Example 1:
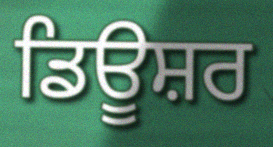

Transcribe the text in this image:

ਡਿਊਸ਼ਰ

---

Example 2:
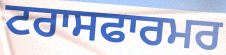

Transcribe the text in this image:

ਟਰਾਸਫਾਰਮਰ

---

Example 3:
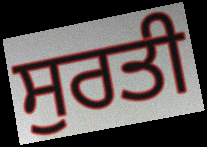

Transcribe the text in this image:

ਸੁਰਤੀ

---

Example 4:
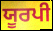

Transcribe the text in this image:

ਯੂਰਪੀ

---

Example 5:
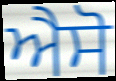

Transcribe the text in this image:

ਐਸੋ